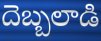
దెబ్బలాడి